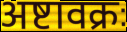
अष्टावक्रः